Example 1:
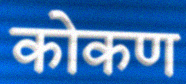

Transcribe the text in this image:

कोकण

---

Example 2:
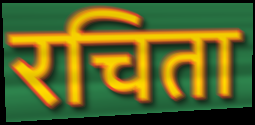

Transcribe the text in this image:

रचिता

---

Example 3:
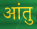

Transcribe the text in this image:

आंतु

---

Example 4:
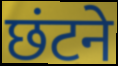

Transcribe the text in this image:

छंटने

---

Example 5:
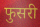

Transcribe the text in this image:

फुसरी